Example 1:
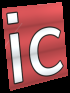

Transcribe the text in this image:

ic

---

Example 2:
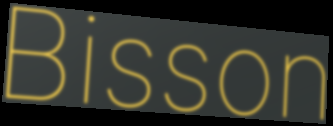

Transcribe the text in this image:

Bisson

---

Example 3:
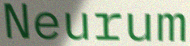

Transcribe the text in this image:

Neurum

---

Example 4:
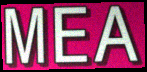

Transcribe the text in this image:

MEA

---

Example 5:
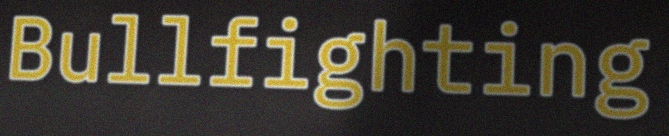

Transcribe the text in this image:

Bullfighting